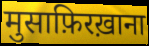
मुसाफ़िरख़ाना